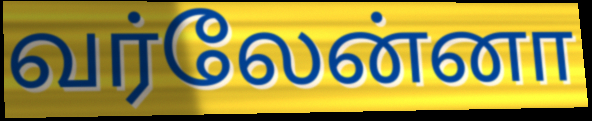
வர்லேன்னா